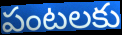
పంటలకు